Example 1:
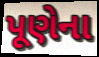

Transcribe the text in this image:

પૂણેના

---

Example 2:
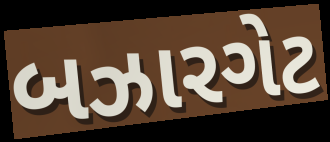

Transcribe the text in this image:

બઝારગેટ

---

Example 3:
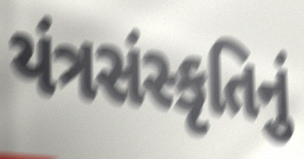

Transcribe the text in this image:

યંત્રસંસ્કૃતિનું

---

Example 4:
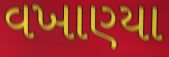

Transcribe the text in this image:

વખાણ્યા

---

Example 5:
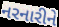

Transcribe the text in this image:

નરનારીને